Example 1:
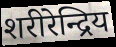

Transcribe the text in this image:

शरीरेन्द्रिय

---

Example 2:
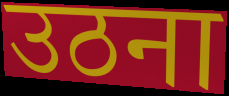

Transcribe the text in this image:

उठना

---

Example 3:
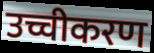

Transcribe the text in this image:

उच्चीकरण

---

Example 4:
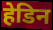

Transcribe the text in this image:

हेडिन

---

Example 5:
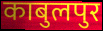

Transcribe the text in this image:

काबुलपुर